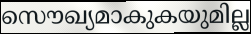
സൌഖ്യമാകുകയുമില്ല